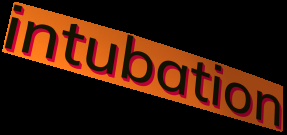
intubation